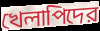
খেলাপিদের